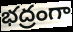
భద్రంగా